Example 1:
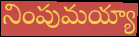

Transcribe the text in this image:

నింపుమయ్యా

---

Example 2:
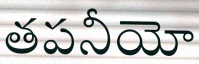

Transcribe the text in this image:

తపనీయో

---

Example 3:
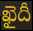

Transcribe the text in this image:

ఖైదీ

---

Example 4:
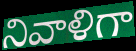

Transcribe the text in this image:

నివాళిగా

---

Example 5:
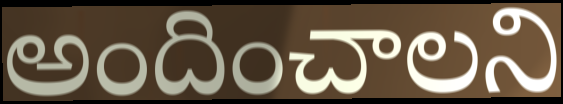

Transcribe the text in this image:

అందించాలని